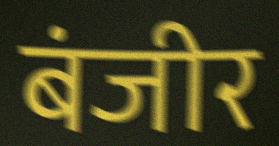
बंजीर